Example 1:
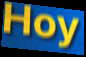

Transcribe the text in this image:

Hoy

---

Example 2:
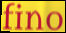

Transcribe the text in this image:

fino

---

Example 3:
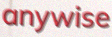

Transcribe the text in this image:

anywise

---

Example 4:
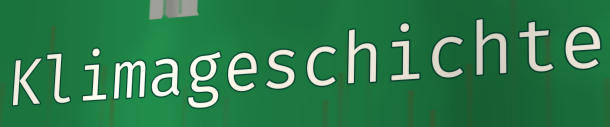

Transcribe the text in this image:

Klimageschichte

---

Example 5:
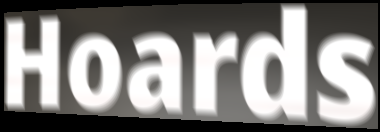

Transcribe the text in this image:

Hoards